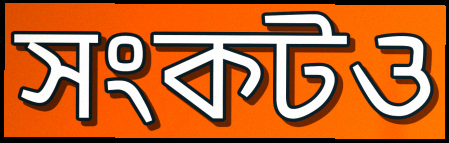
সংকটও